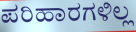
ಪರಿಹಾರಗಳಿಲ್ಲ